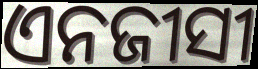
ଏନଜୀସୀ